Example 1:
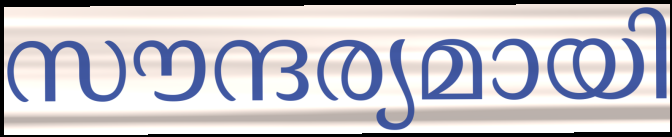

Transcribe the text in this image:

സൗന്ദര്യമായി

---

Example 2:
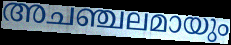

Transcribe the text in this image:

അചഞ്ചലമായും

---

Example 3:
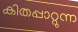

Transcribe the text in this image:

കിതപ്പാറ്റുന്ന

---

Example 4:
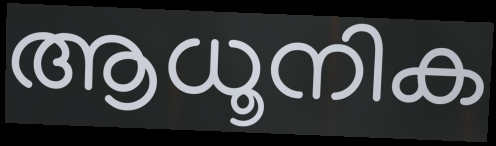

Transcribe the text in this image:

ആധൂനിക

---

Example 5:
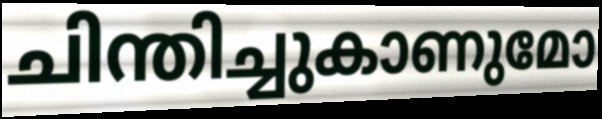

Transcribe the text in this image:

ചിന്തിച്ചുകാണുമോ